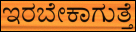
ಇರಬೇಕಾಗುತ್ತೆ